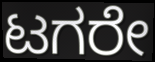
ಟಗರೇ